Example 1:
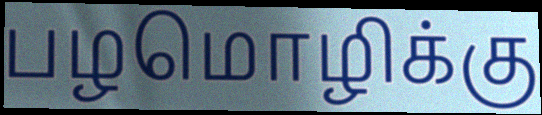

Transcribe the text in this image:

பழமொழிக்கு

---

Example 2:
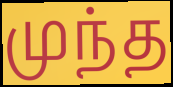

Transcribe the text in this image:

முந்த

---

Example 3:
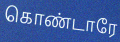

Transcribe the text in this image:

கொண்டாரே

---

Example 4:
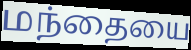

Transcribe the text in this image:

மந்தையை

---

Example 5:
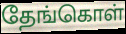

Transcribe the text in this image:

தேங்கொள்